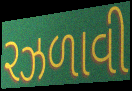
રઝળાવી